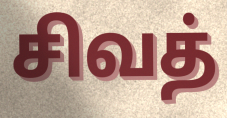
சிவத்